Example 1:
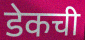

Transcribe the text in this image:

डेकची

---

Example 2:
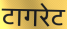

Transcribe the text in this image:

टागरेट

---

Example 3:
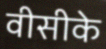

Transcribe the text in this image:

वीसीके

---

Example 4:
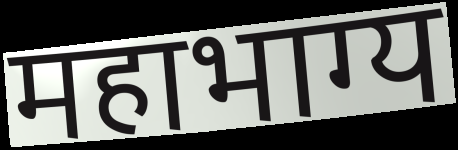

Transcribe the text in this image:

महाभाग्य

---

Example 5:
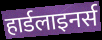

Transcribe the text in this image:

हार्डलाइनर्स